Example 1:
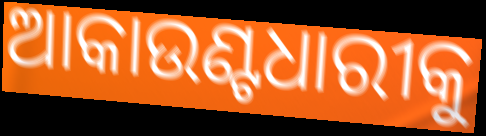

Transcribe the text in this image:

ଆକାଉଣ୍ଟଧାରୀକୁ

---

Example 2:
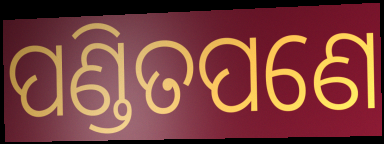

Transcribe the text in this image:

ପଣ୍ଡିତପଣେ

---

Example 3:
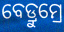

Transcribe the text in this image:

ବେଡ୍ରୁମ୍ରେ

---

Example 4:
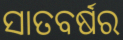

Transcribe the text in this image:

ସାତବର୍ଷର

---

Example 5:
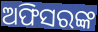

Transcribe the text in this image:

ଅଫିସରଙ୍କ